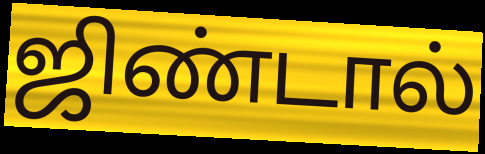
ஜிண்டால்